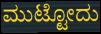
ಮುಟ್ಟೋದು